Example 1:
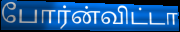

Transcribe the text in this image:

போர்ன்விட்டா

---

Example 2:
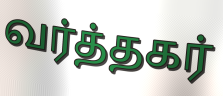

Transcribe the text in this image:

வர்த்தகர்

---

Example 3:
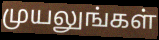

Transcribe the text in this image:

முயலுங்கள்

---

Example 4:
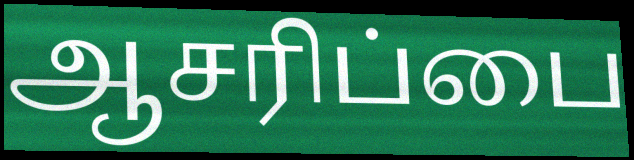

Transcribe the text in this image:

ஆசரிப்பை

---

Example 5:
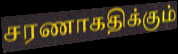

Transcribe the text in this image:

சரணாகதிக்கும்